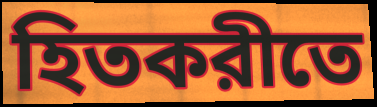
হিতকরীতে